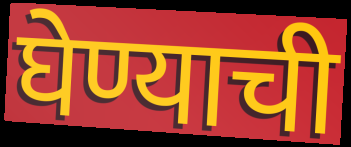
घेण्याची